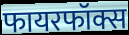
फायरफॉक्स